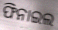
ଫିନାଇଲ